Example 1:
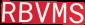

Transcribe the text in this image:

RBVMS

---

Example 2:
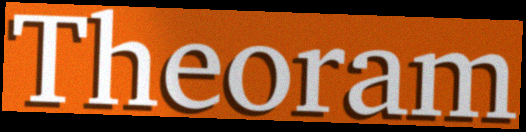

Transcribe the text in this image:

Theoram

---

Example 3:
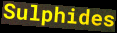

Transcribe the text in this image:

Sulphides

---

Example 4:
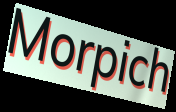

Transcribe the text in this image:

Morpich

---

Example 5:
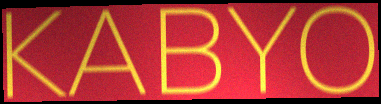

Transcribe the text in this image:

KABYO